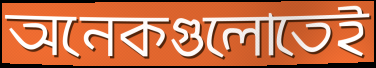
অনেকগুলোতেই